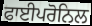
ਫਾਈਪਰੋਨਿਲ